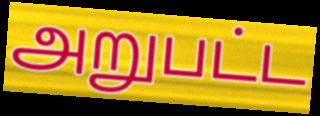
அறுபட்ட